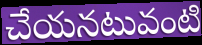
చేయనటువంటి